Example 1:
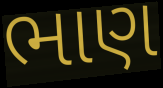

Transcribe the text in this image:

ભાણ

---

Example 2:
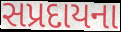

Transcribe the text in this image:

સપ્રદાયના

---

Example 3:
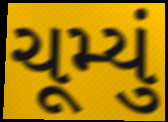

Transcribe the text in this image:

ચૂમ્યું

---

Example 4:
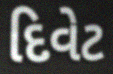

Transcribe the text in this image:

દિવેટ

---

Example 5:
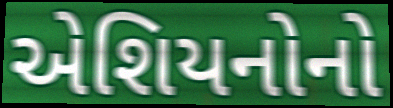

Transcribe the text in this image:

એશિયનોનો